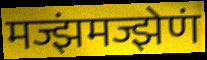
मज्झंमज्झेणं